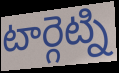
టార్గెట్ని